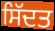
ਸਿੱਦਤ